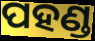
ପହଣ୍ଡ